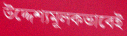
উদ্দেশ্যমূলকভাবেই